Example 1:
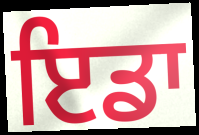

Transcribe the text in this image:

ਇਡਾ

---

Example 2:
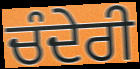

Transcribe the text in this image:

ਚੰਦੇਰੀ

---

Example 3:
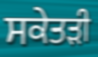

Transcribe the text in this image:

ਸਕੇਤੜੀ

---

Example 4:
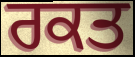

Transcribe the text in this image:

ਰਕਤ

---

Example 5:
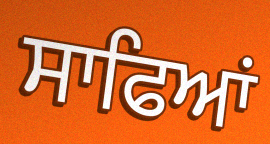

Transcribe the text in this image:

ਸਾਫਿਆਂ